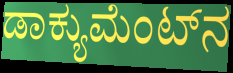
ಡಾಕ್ಯುಮೆಂಟ್‌ನ